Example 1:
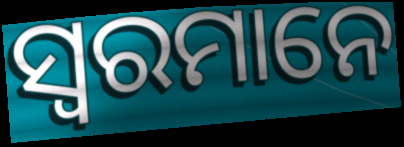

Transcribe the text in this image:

ସ୍ୱରମାନେ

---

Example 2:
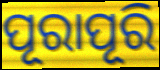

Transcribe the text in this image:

ପୂରାପୂରି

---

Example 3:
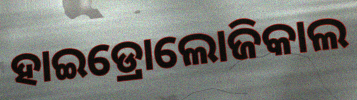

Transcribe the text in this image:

ହାଇଡ୍ରୋଲୋଜିକାଲ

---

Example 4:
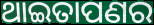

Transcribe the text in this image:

ଥାଇତାପଣର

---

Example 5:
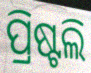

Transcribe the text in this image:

ପ୍ରିଷ୍ଟଲି